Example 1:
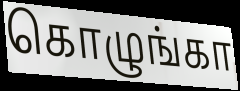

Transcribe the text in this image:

கொழுங்கா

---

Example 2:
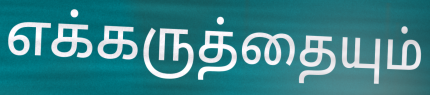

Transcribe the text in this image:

எக்கருத்தையும்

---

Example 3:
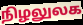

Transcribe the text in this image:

நிழலுலக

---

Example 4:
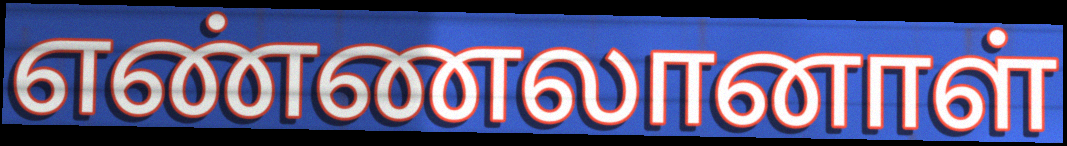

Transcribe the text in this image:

எண்ணலானாள்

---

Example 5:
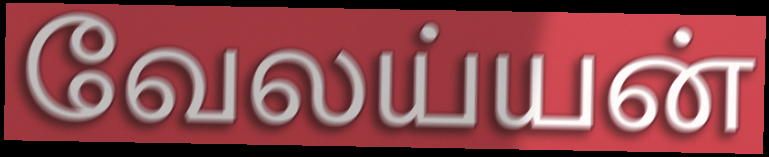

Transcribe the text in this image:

வேலய்யன்